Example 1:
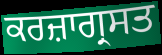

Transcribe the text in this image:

ਕਰਜ਼ਾਗ੍ਰਸਤ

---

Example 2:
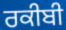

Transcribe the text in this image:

ਰਕੀਬੀ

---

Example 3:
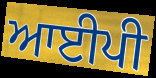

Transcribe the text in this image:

ਆਈਪੀ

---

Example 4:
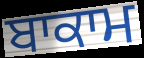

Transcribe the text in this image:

ਬਾਕਾਮ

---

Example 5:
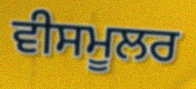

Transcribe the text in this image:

ਵੀਸਮੂਲਰ